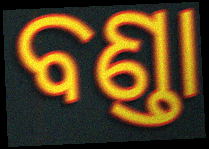
ବଣ୍ଡା